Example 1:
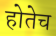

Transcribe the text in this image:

होतेच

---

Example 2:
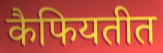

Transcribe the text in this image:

कैफियतीत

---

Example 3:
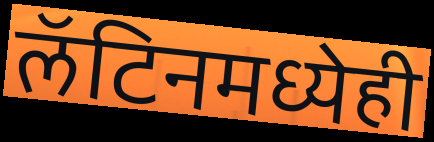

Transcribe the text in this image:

लॅटिनमध्येही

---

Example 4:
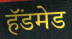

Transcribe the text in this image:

हॅंडमेड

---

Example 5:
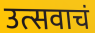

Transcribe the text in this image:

उत्सवाचं